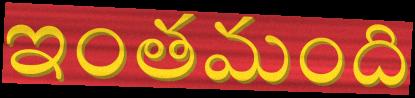
ఇంతమంది